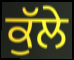
ਕੁੱਲੇ